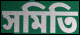
সমিতি